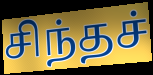
சிந்தச்